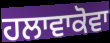
ਹਲਾਵਾਕੋਵਾ